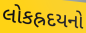
લોકહ્રદયનો